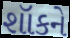
શૉકને